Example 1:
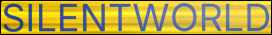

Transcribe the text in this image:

SILENTWORLD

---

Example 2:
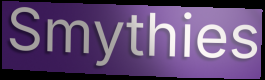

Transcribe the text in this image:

Smythies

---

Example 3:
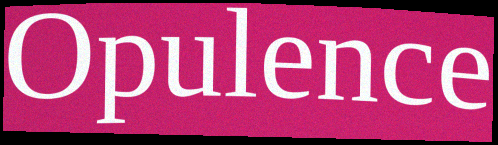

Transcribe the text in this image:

Opulence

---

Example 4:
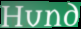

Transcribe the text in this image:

Hund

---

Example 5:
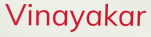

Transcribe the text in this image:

Vinayakar